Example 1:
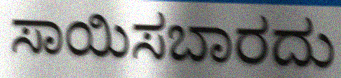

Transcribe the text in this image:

ಸಾಯಿಸಬಾರದು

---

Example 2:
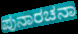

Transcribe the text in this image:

ಪುನಾರಚನಾ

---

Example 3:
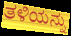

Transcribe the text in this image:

ತಳಿಯನ್ನು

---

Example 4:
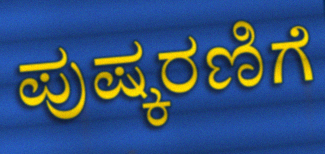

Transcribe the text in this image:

ಪುಷ್ಕರಣಿಗೆ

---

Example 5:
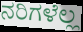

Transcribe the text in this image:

ನರಿಗಳೆಲ್ಲ